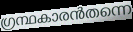
ഗ്രന്ഥകാരൻതന്നെ